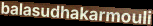
balasudhakarmouli